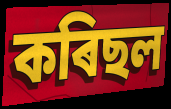
কৰিছল